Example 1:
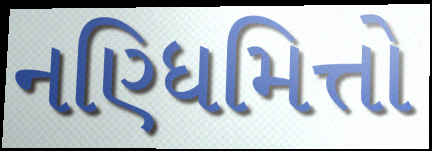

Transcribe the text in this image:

નણ્ધિમિત્તો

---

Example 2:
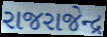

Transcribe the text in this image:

રાજરાજેન્દ્ર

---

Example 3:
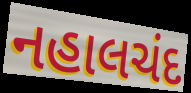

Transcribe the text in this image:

નહાલચંદ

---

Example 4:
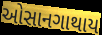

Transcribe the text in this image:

ઓસાનગાથાય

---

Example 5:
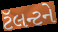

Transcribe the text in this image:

ટૅલન્ટને